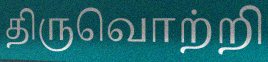
திருவொற்றி